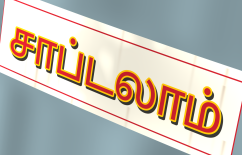
சாப்டலாம்